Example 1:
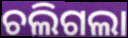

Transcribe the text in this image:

ଚଲିଗଲା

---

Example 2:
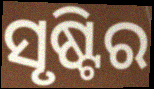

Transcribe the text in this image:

ସୃଷ୍ଟିର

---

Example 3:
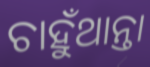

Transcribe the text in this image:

ଚାହୁଁଥାନ୍ତା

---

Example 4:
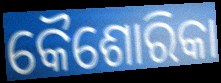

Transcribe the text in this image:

କୈଶୋରିକା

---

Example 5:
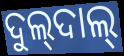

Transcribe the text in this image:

ଦୁଲ୍‍ଦାଲ୍